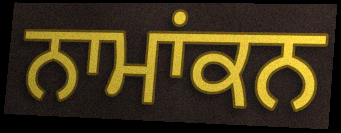
ਨਾਮਾਂਕਨ